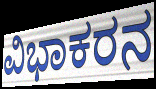
ವಿಭಾಕರನ